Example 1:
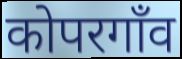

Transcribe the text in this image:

कोपरगाँव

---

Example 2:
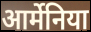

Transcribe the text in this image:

आर्मेनिया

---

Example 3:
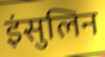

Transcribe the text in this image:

इंसुलिन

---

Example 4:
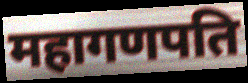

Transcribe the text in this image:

महागणपति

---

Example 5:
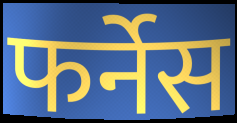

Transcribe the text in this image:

फर्नेस